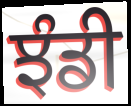
ਝੰਡੀ